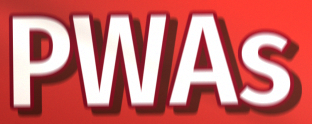
PWAs